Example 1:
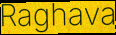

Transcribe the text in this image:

Raghava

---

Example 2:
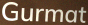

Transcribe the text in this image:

Gurmat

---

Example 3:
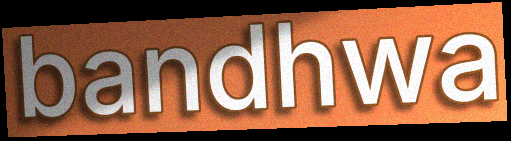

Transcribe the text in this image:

bandhwa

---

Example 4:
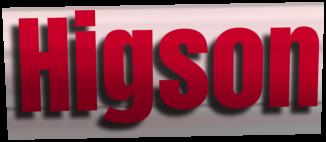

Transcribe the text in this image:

Higson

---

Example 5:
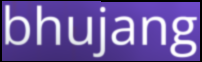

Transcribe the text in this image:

bhujang